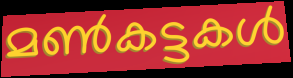
മൺകട്ടകൾ